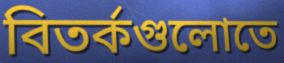
বিতর্কগুলোতে